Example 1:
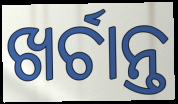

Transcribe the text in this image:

ଖର୍ଚାନ୍ତ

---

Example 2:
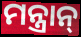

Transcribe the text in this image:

ମନ୍ତ୍ରାନ୍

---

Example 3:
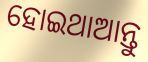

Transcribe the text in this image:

ହୋଇଥାଆନ୍ତୁ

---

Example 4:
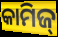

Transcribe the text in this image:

କାମିଜ୍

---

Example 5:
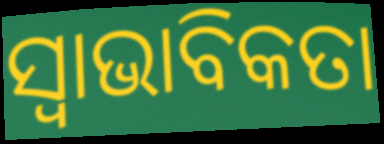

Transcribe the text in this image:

ସ୍ବାଭାବିକତା